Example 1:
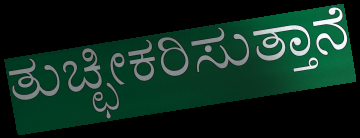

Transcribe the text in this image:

ತುಚ್ಛೀಕರಿಸುತ್ತಾನೆ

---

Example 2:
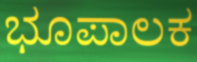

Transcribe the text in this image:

ಭೂಪಾಲಕ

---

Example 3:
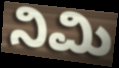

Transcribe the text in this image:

ನಿಮಿ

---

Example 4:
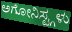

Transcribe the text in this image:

ಅಗೋನಿಸ್ಟ್ಗಳು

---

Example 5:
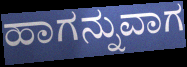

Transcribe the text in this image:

ಹಾಗನ್ನುವಾಗ